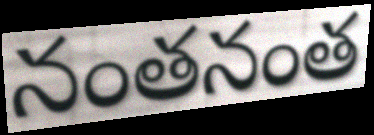
నంతనంత